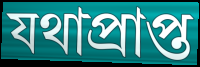
যথাপ্রাপ্ত